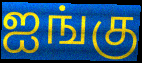
ஐங்கு